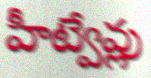
హీట్వేవ్లు